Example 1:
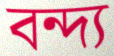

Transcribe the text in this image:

বন্দ্য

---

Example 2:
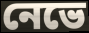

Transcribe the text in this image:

নেভে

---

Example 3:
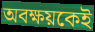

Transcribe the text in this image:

অবক্ষয়কেই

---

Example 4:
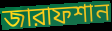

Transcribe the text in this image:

জারাফশান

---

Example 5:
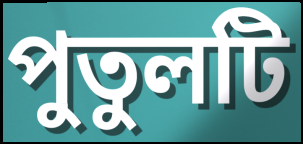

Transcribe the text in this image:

পুতুলটি